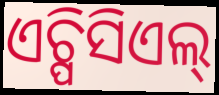
ଏଚ୍ପିସିଏଲ୍